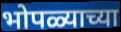
भोपळ्याच्या